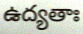
ఉద్యతాః